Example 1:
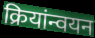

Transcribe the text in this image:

क्रियांन्वयन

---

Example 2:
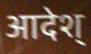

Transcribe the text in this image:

आदेश्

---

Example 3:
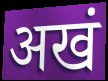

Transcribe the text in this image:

अखं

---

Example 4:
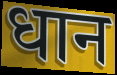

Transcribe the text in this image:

धान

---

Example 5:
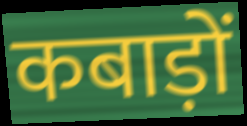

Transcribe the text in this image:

कबाड़ों